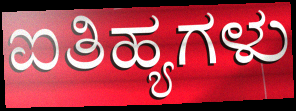
ಐತಿಹ್ಯಗಳು